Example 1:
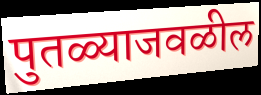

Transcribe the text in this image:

पुतळ्याजवळील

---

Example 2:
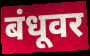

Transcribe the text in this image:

बंधूवर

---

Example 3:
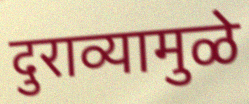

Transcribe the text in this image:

दुराव्यामुळे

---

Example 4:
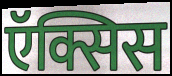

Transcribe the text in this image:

ऍक्सिस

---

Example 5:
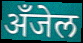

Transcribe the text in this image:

अँजेल